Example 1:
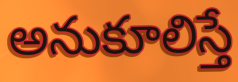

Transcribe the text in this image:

అనుకూలిస్తే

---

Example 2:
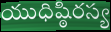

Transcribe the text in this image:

యుధిష్ఠిరస్య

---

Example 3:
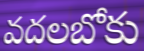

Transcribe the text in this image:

వదలబోకు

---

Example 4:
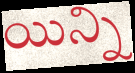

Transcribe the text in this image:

యిన్ని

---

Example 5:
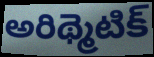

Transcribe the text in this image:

అరిథ్మెటిక్